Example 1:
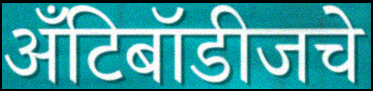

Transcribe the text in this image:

अँटिबॉडीजचे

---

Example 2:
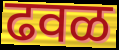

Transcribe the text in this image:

ढवळ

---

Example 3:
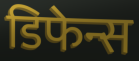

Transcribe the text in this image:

डिफेन्स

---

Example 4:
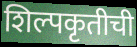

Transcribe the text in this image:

शिल्पकृतीची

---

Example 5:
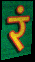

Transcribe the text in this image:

रं